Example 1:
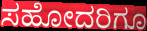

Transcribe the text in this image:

ಸಹೋದರಿಗೂ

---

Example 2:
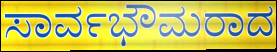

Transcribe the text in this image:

ಸಾರ್ವಭೌಮರಾದ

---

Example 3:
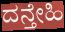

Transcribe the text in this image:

ದನ್ತೇಹಿ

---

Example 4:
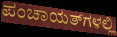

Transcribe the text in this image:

ಪಂಚಾಯತ್‌ಗಳಲ್ಲಿ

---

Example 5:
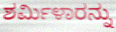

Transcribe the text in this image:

ಶರ್ಮಿಳಾರನ್ನು